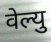
वेल्यु